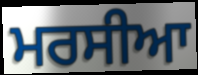
ਮਰਸੀਆ